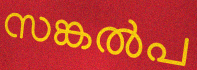
സങ്കൽപ